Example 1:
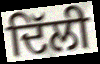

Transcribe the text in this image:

ਦਿੱਲੀ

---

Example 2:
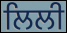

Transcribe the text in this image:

ਲਿਲੀ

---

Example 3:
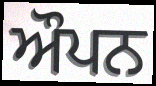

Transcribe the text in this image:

ਔਪਨ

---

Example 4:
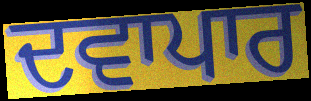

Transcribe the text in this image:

ਦਵਾਪਾਰ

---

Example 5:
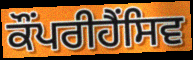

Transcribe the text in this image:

ਕੌਂਪਰੀਹੈਂਸਿਵ